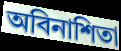
অবিনাশিতা